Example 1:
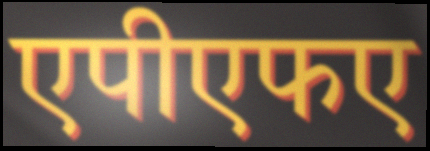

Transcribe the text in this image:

एपीएफए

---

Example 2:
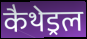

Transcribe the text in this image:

कैथेड्रल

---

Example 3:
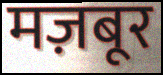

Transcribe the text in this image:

मज़बूर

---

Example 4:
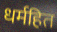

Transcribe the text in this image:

धर्महित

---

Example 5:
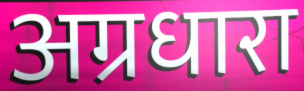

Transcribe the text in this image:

अग्रधारा